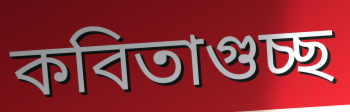
কবিতাগুচ্ছ